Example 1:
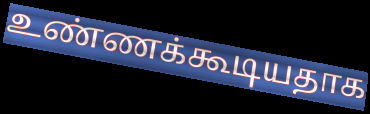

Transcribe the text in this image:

உண்ணக்கூடியதாக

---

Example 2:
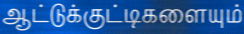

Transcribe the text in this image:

ஆட்டுக்குட்டிகளையும்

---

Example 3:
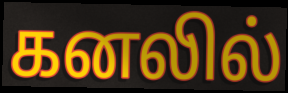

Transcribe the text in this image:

கனலில்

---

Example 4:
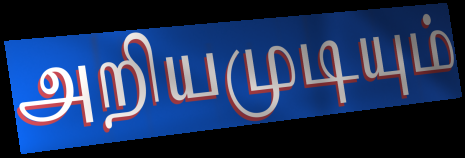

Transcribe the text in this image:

அறியமுடியும்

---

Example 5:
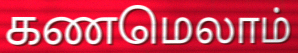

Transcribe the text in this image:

கணமெலாம்